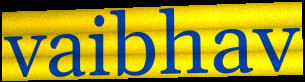
vaibhav